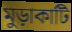
মুড়াকাটি